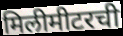
मिलीमीटरची